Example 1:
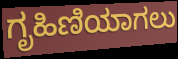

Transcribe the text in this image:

ಗೃಹಿಣಿಯಾಗಲು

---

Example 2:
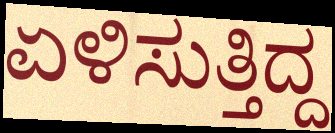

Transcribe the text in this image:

ಏಳಿಸುತ್ತಿದ್ದ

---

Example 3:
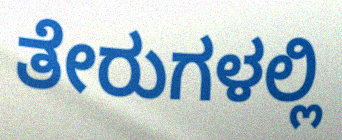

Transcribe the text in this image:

ತೇರುಗಳಲ್ಲಿ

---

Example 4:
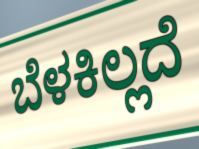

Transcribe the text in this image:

ಬೆಳಕಿಲ್ಲದೆ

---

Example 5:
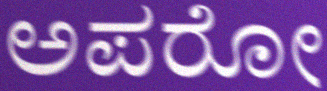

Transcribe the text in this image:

ಅಪರೋ